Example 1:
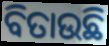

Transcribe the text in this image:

ବିତାଉଛି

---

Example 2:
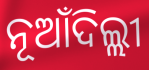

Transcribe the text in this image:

ନୂଆଁଦିଲ୍ଲୀ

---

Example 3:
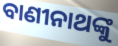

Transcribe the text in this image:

ବାଣୀନାଥଙ୍କୁ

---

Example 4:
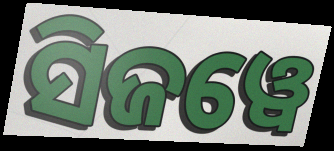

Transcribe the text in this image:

ସିଜୱେ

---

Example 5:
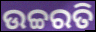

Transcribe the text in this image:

ଉଚ୍ଚରତି